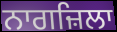
ਨਾਗਜ਼ਿਲਾ